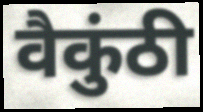
वैकुंठी